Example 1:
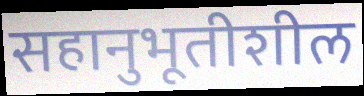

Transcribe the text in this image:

सहानुभूतीशील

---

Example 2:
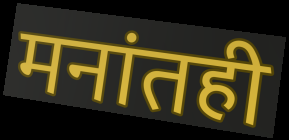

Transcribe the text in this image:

मनांतही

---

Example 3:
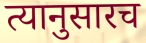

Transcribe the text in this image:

त्यानुसारच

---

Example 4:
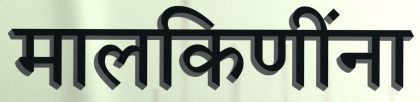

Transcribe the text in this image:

मालकिणींना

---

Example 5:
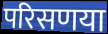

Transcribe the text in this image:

परिसणया